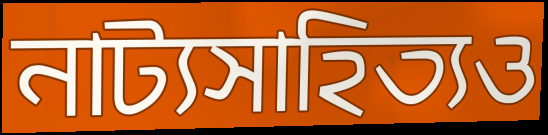
নাট্যসাহিত্যও